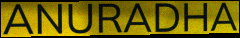
ANURADHA